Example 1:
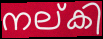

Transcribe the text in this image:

നല്കി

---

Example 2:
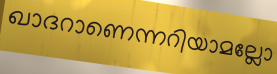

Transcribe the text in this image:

ഖാദറാണെന്നറിയാമല്ലോ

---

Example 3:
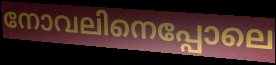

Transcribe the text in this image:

നോവലിനെപ്പോലെ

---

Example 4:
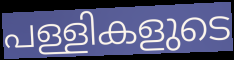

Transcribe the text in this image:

പള്ളികളുടെ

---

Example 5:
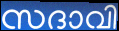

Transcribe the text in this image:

സദാവി